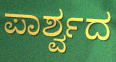
ಪಾರ್ಶ್ವದ